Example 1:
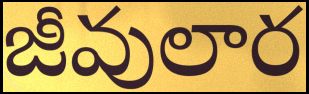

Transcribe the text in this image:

జీవులార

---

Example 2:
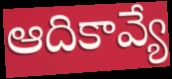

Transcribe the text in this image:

ఆదికావ్యే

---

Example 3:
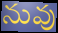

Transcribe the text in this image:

నువు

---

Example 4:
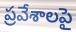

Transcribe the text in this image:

ప్రవేశాలపై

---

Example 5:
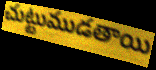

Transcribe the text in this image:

చుట్టుముడతాయి